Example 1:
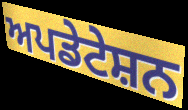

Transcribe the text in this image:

ਅਪਡੇਟੇਸ਼ਨ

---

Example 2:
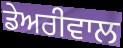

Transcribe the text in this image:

ਡੇਅਰੀਵਾਲ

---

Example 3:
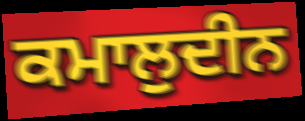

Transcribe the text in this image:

ਕਮਾਲੁਦੀਨ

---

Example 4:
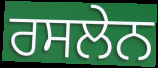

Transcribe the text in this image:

ਰਸਲੇਨ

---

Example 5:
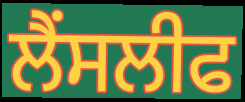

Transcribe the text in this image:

ਲੈਂਸਲੀਫ